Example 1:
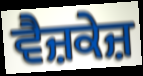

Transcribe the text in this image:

ਵੈਜ਼ਕੇਜ਼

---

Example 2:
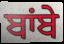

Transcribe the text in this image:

ਬਾਂਬੇ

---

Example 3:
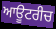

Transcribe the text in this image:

ਆਊਟਰੀਚ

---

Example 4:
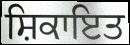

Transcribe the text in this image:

ਸ਼ਿਕਾਇਤ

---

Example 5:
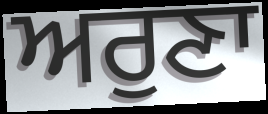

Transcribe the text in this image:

ਅਰੁਣਾ